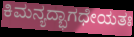
ಕಿಮನ್ಯದ್ಭಾಗಧೇಯತಃ